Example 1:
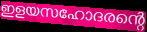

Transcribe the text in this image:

ഇളയസഹോദരന്റെ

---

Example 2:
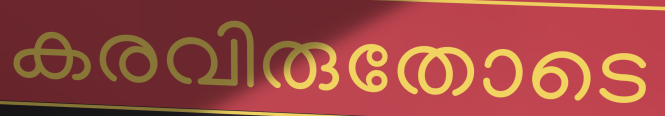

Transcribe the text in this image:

കരവിരുതോടെ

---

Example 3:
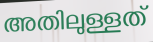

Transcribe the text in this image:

അതിലുള്ളത്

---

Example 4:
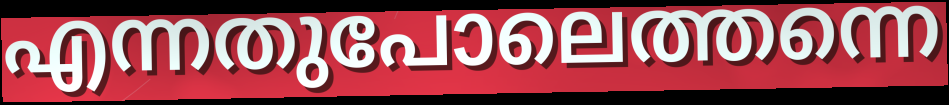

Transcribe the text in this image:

എന്നതുപോലെത്തന്നെ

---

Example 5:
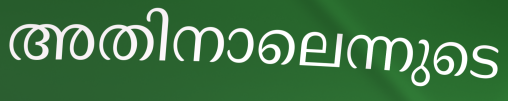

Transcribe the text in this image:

അതിനാലെന്നുടെ